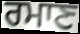
ਰਮਾਣ